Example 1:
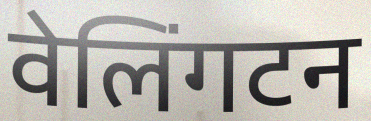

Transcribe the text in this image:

वेलिंगटन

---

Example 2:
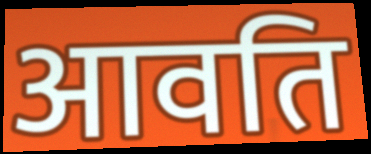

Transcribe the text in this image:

आवति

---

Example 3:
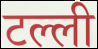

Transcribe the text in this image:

टल्ली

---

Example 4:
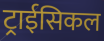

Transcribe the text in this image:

ट्राईसिकल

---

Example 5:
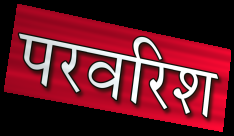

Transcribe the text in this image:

परवरिश